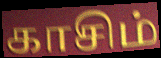
காசிம்